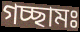
গচ্ছামঃ